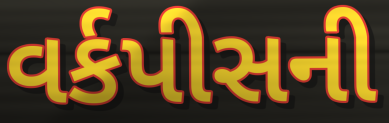
વર્કપીસની